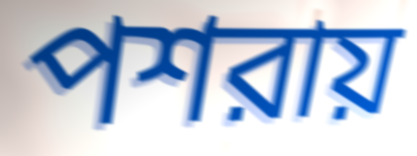
পশরায়